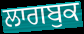
ਲਾਗਬੁਕ